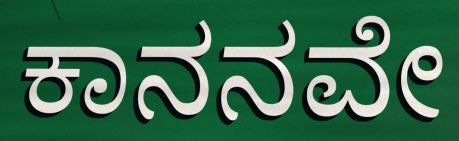
ಕಾನನವೇ